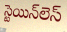
స్టెయిన్‌లెస్